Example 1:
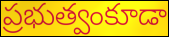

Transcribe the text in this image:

ప్రభుత్వంకూడా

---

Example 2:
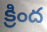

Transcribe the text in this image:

క్రింద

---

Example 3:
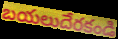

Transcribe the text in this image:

బయలుదేరకండి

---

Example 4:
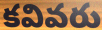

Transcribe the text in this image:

కవివరు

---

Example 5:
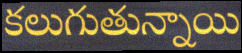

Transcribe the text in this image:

కలుగుతున్నాయి